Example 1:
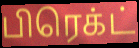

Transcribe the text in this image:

பிரெக்ட்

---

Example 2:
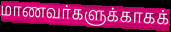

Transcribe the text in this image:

மாணவர்களுக்காகக்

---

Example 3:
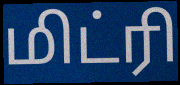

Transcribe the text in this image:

மிட்ரி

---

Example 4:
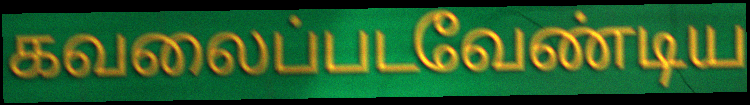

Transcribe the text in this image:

கவலைப்படவேண்டிய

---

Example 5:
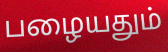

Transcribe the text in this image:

பழையதும்